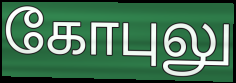
கோபுலு